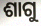
ଶାଗୁ